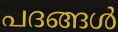
പദങ്ങൾ